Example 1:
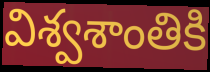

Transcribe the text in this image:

విశ్వశాంతికి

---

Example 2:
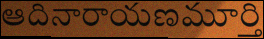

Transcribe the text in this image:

ఆదినారాయణమూర్తి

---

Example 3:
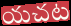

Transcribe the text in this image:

యచట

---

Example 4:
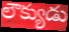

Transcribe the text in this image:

లౌక్యుడు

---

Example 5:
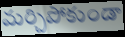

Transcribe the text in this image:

మర్చిపోకుండా